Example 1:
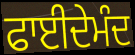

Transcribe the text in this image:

ਫਾਈਦੇਮੰਦ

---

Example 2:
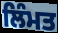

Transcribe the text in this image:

ਲਿੰਮਤ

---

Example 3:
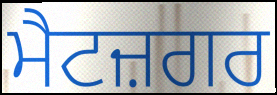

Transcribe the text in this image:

ਮੈਟਜ਼ਗਰ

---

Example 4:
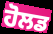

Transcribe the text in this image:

ਹੋਲਡ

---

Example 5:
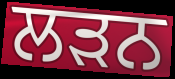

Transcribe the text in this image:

ਲੜਨ